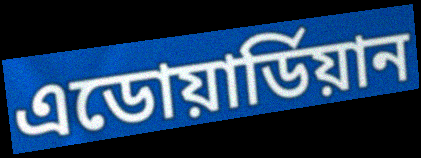
এডোয়ার্ডিয়ান